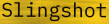
Slingshot